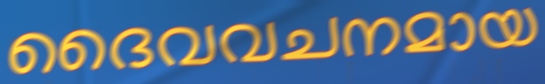
ദൈവവചനമായ